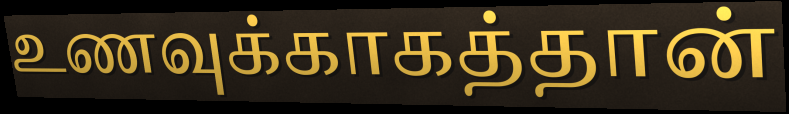
உணவுக்காகத்தான்